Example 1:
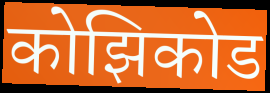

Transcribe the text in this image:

कोझिकोड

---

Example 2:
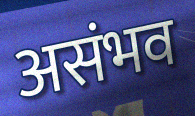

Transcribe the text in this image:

असंभव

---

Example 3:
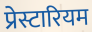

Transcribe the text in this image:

प्रेस्टारियम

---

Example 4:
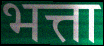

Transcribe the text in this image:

भत्ता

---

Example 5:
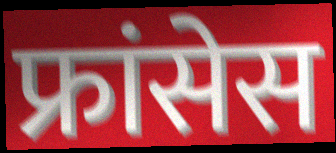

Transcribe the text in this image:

फ्रांसेस